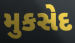
મુકસેદ